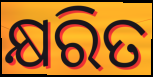
କ୍ଷରିତ